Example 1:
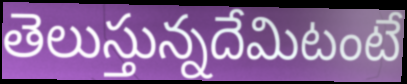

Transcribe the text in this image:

తెలుస్తున్నదేమిటంటే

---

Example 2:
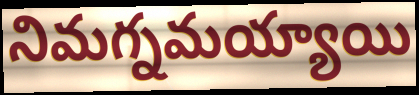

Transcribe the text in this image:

నిమగ్నమయ్యాయి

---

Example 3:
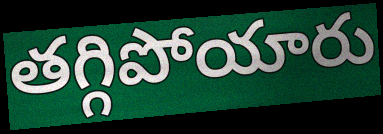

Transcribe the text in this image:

తగ్గిపోయారు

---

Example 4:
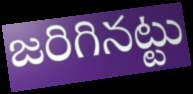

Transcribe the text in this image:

జరిగినట్టు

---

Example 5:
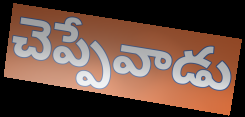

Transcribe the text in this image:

చెప్పేవాడు